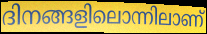
ദിനങ്ങളിലൊന്നിലാണ്